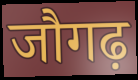
जौगढ़